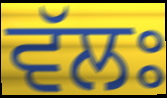
ਵੱਲਃ